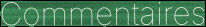
Commentaires